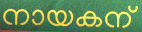
നായകന്